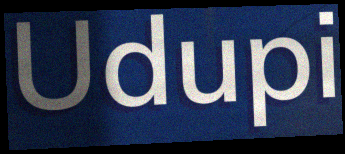
Udupi